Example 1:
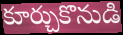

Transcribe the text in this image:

కూర్చుకొనుడి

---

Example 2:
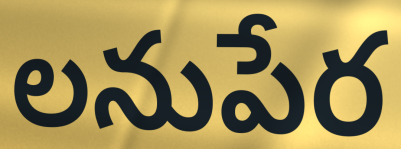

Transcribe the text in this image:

లనుపేర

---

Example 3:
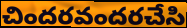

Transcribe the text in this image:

చిందరవందరచేసి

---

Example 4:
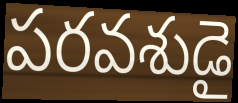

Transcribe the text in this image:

పరవశుడై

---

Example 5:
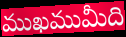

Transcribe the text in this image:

ముఖముమీది